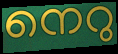
നെറു